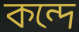
কন্দে